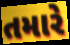
તમારે